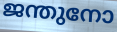
ജന്തുനോ